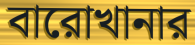
বারোখানার